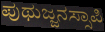
ಪುಥುಜ್ಜನಸ್ಸಾಪಿ